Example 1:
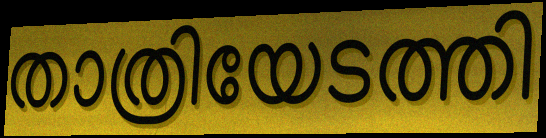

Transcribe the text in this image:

താത്രിയേടത്തി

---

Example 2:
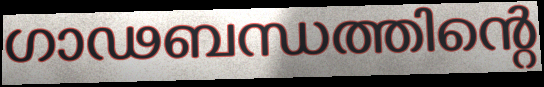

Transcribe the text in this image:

ഗാഢബന്ധത്തിന്റെ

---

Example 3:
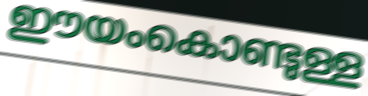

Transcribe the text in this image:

ഈയംകൊണ്ടുള്ള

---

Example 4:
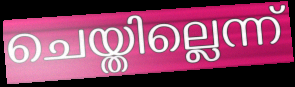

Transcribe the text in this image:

ചെയ്തില്ലെന്ന്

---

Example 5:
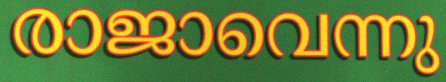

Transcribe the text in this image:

രാജാവെന്നു